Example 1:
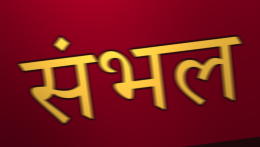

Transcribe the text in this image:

संभल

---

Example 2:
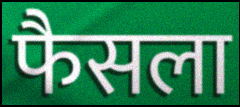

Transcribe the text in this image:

फैसला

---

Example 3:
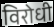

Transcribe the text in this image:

विरोधी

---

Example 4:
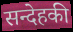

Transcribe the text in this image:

सन्देहकी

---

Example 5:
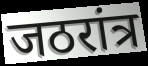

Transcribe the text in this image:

जठरांत्र